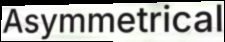
Asymmetrical